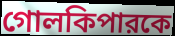
গোলকিপারকে